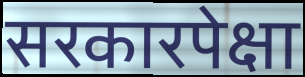
सरकारपेक्षा